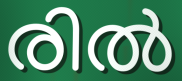
രിൽ